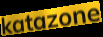
katazone